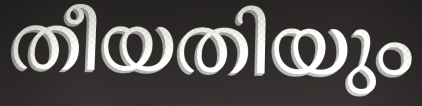
തീയതിയും